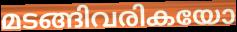
മടങ്ങിവരികയോ